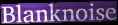
Blanknoise